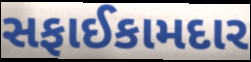
સફાઈકામદાર